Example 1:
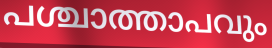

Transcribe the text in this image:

പശ്ചാത്താപവും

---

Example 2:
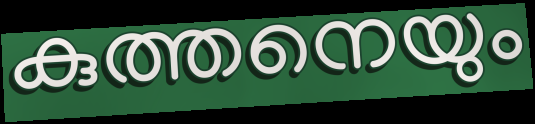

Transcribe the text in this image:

കുത്തനെയും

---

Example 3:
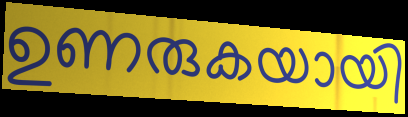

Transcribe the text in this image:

ഉണരുകയായി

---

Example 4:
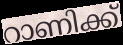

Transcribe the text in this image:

റാണിക്ക്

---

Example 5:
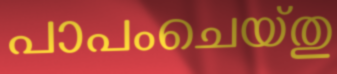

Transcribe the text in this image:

പാപംചെയ്തു